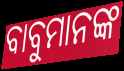
ବାବୁମାନଙ୍କ